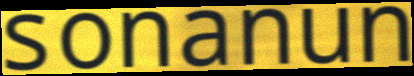
sonanun